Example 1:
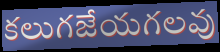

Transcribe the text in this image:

కలుగజేయగలవు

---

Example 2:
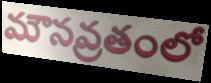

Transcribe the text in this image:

మౌనవ్రతంలో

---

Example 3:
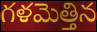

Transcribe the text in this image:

గళమెత్తిన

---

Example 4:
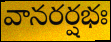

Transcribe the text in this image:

వానరర్షభః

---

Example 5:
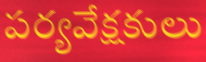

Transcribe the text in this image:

పర్యవేక్షకులు